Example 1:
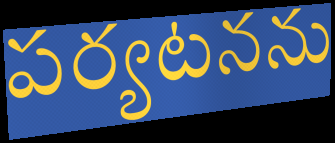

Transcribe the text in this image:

పర్యటనను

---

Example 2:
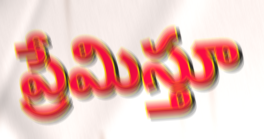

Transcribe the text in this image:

ప్రేమిస్తూ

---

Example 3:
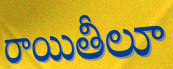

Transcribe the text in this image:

రాయితీలూ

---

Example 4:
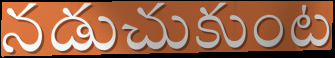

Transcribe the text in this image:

నడుచుకుంట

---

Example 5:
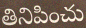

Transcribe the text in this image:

తినిపించు